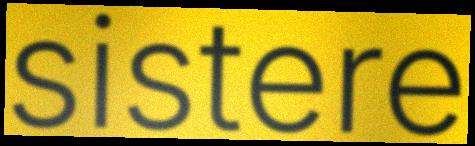
sistere